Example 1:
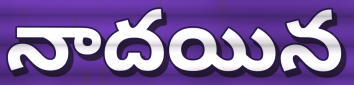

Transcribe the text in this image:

నాదయిన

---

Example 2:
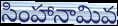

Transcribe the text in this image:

సింహానామివ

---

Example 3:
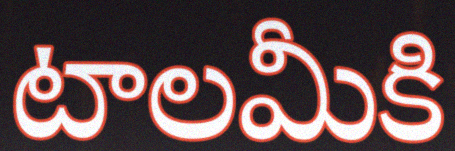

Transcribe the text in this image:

టాలమీకి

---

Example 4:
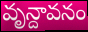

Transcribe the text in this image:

వృన్దావనం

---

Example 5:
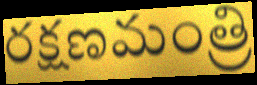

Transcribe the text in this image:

రక్షణమంత్రి